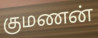
குமணன்